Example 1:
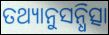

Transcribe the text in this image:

ତଥ୍ୟାନୁସନ୍ଧିତ୍ସା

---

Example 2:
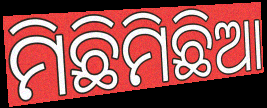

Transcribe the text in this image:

ମିଛିମିଛିଆ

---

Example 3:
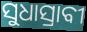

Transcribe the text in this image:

ସୁଧାସ୍ରାବୀ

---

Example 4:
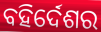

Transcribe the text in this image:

ବହିର୍ଦେଶର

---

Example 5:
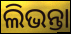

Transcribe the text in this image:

ଲିଭନ୍ତା